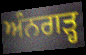
ਅੰਨਗੜ੍ਹ